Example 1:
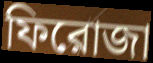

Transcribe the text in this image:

ফিরোজা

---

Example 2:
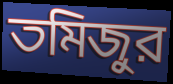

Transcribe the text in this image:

তমিজুর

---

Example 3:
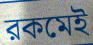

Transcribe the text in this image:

রকমেই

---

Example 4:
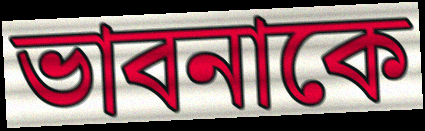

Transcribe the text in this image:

ভাবনাকে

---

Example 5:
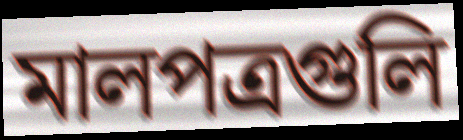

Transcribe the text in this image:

মালপত্রগুলি